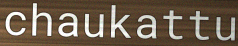
chaukattu